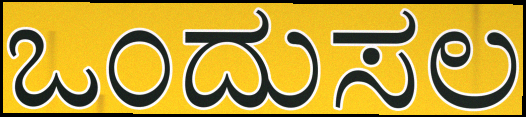
ಒಂದುಸಲ